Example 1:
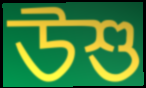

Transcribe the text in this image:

উশু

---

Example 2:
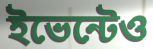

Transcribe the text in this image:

ইভেন্টেও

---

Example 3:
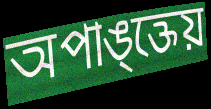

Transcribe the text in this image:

অপাঙ্‌ক্তেয়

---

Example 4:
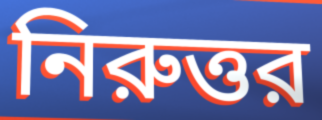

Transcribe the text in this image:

নিরুত্তর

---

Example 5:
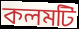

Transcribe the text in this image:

কলমটি